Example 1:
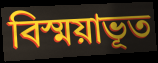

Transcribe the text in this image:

বিস্ময়াভূত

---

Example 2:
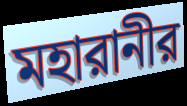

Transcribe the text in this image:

মহারানীর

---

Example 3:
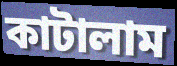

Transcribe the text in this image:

কাটালাম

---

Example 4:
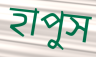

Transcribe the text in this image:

হাপুস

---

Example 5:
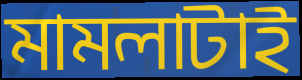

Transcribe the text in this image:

মামলাটাই